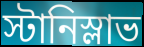
স্টানিস্লাভ